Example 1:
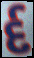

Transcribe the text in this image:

ર્દ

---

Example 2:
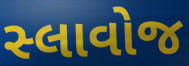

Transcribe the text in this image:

સ્લાવોજ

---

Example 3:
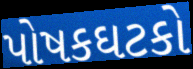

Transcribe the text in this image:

પોષકઘટકો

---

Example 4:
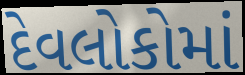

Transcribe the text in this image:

દેવલોકોમાં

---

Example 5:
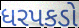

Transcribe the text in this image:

ધરપકડો